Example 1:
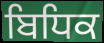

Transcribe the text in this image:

ਬਿਧਿਕ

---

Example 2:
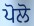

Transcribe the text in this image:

ਪੋਲੋ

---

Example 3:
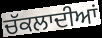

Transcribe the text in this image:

ਚੱਕਲਾਦੀਆਂ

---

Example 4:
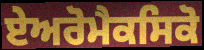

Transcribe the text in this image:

ਏਅਰੋਮੈਕਸਿਕੋ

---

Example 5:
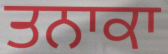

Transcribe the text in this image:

ਤਨਾਕਾ